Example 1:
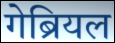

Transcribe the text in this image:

गेब्रियल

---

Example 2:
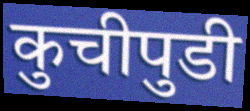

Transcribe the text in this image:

कुचीपुडी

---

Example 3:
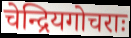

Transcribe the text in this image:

चेन्द्रियगोचराः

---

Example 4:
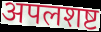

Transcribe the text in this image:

अपलशष्ट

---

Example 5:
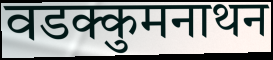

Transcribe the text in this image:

वडक्कुमनाथन